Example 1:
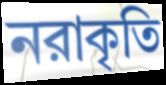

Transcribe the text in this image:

নরাকৃতি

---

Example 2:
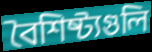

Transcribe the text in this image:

বৈশিষ্ট্যগুলি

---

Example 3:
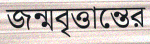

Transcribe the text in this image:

জন্মবৃত্তান্তের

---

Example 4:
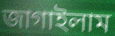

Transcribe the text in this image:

জাগাইলাম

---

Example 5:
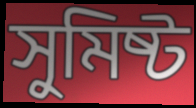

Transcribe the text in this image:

সুমিষ্ট